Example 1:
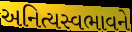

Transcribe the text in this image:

અનિત્યસ્વભાવને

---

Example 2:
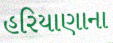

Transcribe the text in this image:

હરિયાણાના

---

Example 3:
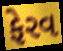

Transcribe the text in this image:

ફેરવ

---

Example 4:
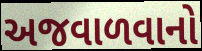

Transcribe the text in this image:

અજવાળવાનો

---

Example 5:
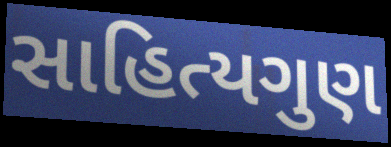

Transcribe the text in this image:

સાહિત્યગુણ